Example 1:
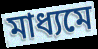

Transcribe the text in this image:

মাধ্যমে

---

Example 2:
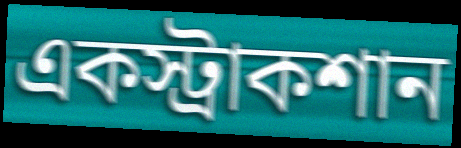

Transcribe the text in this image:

একস্ট্রাকশান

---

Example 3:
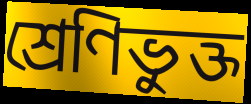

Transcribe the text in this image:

শ্রেণিভুক্ত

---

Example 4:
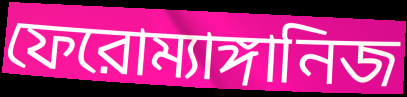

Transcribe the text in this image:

ফেরোম্যাঙ্গানিজ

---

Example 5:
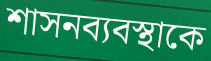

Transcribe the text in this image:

শাসনব্যবস্থাকে